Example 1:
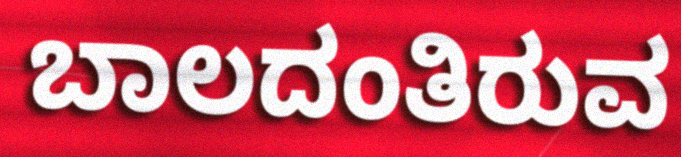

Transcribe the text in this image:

ಬಾಲದಂತಿರುವ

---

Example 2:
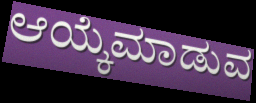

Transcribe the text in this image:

ಆಯ್ಕೆಮಾಡುವ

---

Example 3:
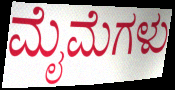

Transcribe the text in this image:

ಮೈಮೆಗಳು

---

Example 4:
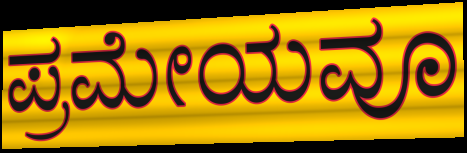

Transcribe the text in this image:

ಪ್ರಮೇಯವೂ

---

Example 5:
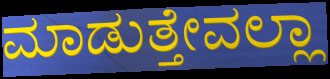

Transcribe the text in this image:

ಮಾಡುತ್ತೇವಲ್ಲಾ